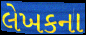
લેખકના